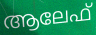
ആലേഫ്